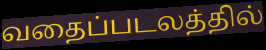
வதைப்படலத்தில்